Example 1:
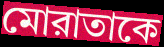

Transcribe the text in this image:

মোরাতাকে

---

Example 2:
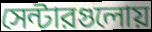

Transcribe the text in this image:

সেন্টারগুলোয়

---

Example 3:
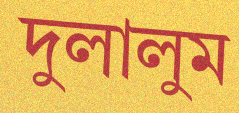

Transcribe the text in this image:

দুলালুম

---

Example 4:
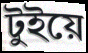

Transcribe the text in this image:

টুইয়ে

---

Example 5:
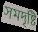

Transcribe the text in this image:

সমদৃষ্টি